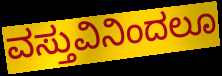
ವಸ್ತುವಿನಿಂದಲೂ